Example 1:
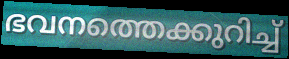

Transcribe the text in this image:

ഭവനത്തെക്കുറിച്ച്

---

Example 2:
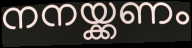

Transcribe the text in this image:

നനയ്ക്കണം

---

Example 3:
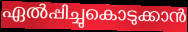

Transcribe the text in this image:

ഏൽപ്പിച്ചുകൊടുക്കാൻ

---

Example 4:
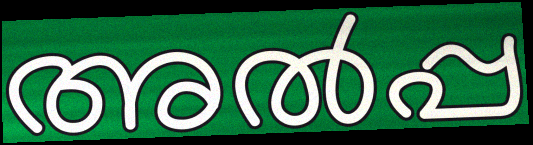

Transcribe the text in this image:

അൽപ്പ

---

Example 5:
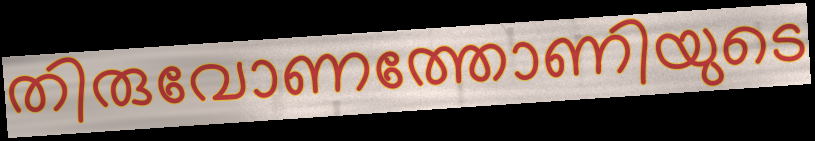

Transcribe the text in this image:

തിരുവോണത്തോണിയുടെ